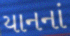
યાનનાં